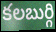
కలబుర్గి